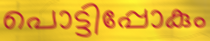
പൊട്ടിപ്പോകും